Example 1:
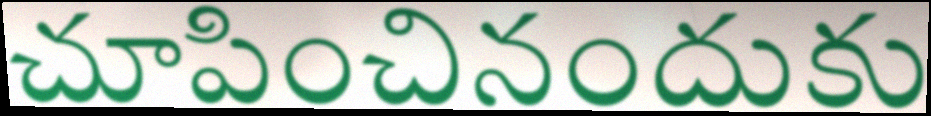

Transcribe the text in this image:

చూపించినందుకు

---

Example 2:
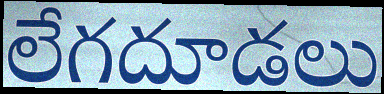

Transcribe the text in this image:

లేగదూడలు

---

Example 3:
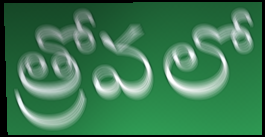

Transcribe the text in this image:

త్రోవలో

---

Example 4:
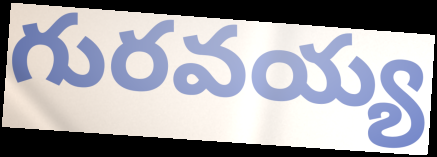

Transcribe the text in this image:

గురవయ్య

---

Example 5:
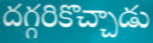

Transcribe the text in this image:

దగ్గరికొచ్చాడు